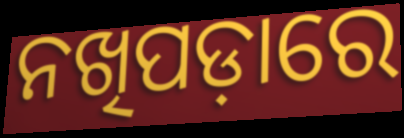
ନଖିପଡ଼ାରେ